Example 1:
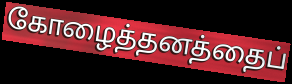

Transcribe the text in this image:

கோழைத்தனத்தைப்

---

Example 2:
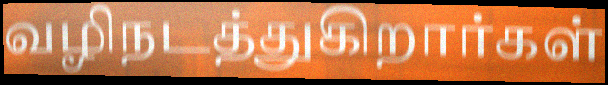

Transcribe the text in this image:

வழிநடத்துகிறார்கள்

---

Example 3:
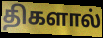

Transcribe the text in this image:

திகளால்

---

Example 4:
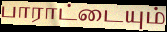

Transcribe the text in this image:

பாராட்டையும்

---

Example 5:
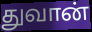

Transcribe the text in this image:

துவான்